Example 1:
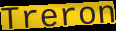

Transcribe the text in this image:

Treron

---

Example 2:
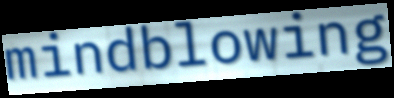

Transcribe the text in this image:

mindblowing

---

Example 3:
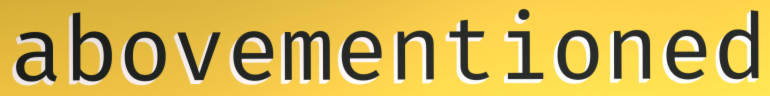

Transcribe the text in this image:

abovementioned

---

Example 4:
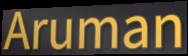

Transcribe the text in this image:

Aruman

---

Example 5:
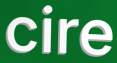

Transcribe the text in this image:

cire